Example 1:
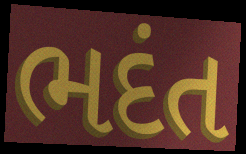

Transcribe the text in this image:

ભદંત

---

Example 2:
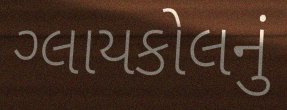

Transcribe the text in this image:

ગ્લાયકોલનું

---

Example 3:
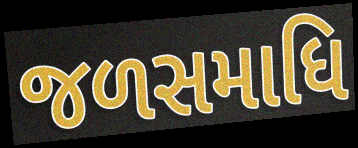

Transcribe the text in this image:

જળસમાધિ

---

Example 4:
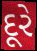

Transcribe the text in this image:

દૂરે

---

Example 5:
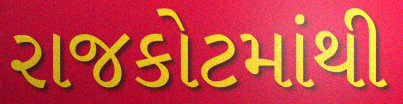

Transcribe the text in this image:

રાજકોટમાંથી